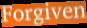
Forgiven